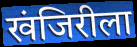
खंजिरीला